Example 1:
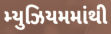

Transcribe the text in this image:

મ્યુઝિયમમાંથી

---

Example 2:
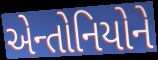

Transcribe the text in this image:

એન્તોનિયોને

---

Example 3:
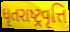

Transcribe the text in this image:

ધૃતરાષ્ટ્રવૃત્તિ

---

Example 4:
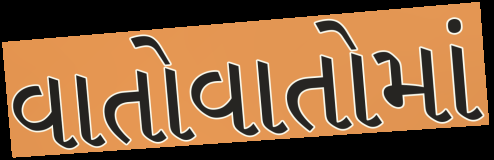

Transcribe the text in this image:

વાતોવાતોમાં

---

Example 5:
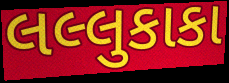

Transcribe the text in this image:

લલ્લુકાકા